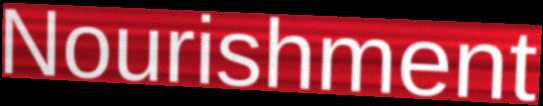
Nourishment